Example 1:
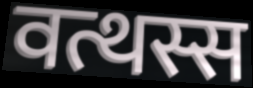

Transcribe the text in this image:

वत्थस्स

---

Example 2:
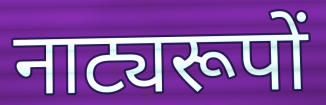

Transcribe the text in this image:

नाट्यरूपों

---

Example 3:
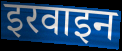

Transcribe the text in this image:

इरवाइन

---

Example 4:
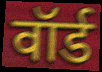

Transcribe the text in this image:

वॉर्ड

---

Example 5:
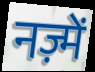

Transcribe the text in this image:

नज़्में